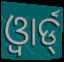
ଓ୍ୱାର୍ଡ୍